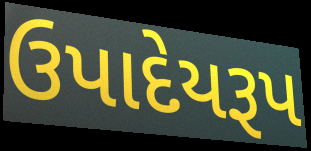
ઉપાદેયરૂપ